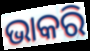
ଭାକରି